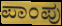
ಪಾಂಪು